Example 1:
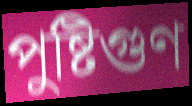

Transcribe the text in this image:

পুষ্টিগুণ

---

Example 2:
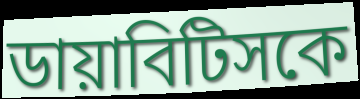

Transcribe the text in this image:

ডায়াবিটিসকে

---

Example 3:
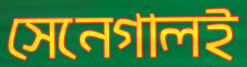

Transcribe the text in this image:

সেনেগালই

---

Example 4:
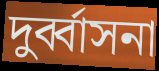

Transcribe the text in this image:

দুর্ব্বাসনা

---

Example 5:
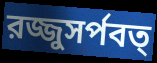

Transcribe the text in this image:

রজ্জুসর্পবত্